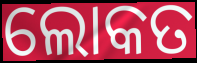
ଲୋକତ